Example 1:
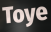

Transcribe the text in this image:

Toye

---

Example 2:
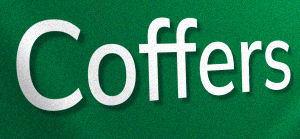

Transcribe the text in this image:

Coffers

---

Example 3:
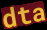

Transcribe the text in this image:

dta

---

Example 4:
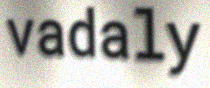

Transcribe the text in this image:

vadaly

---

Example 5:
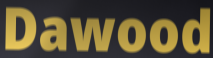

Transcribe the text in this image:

Dawood